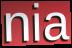
nia